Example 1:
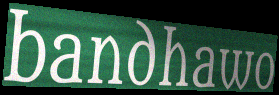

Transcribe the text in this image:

bandhawo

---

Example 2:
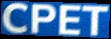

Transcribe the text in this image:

CPET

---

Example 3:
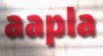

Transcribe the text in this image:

aapla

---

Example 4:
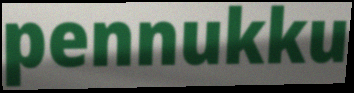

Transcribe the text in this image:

pennukku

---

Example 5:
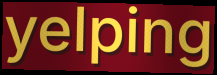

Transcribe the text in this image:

yelping